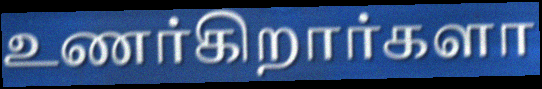
உணர்கிறார்களா